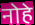
नोहे